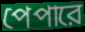
পেপারে